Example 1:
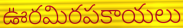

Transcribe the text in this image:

ఊరమిరపకాయలు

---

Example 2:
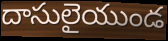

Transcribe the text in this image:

దాసులైయుండ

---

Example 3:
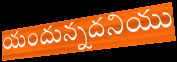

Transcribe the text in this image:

యందున్నదనియు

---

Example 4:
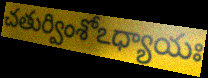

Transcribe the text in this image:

చతుర్వింశోఽధ్యాయః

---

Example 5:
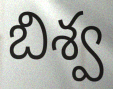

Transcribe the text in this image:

బిశ్వ